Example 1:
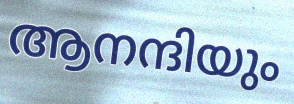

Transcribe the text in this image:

ആനന്ദിയും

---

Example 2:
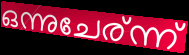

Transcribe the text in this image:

ഒന്നുചേര്ന്ന്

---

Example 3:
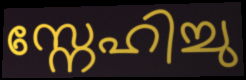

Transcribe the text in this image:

സ്നേഹിച്ചു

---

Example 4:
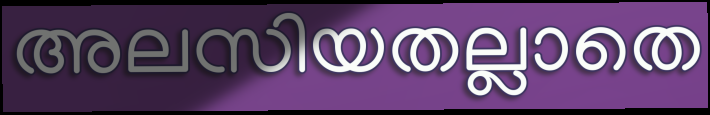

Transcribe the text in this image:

അലസിയതല്ലാതെ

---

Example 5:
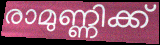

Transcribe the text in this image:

രാമുണ്ണിക്ക്